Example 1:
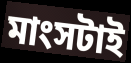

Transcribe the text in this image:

মাংসটাই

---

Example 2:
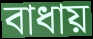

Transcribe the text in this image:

বাধায়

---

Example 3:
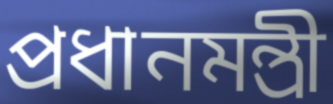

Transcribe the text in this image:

প্রধানমন্ত্রী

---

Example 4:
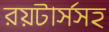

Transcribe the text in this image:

রয়টার্সসহ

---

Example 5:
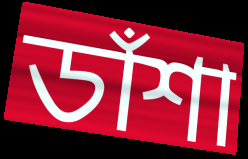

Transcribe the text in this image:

ডাঁশা